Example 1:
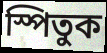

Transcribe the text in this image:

স্পিতুক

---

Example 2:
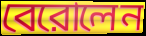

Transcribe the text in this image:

বেরোলেন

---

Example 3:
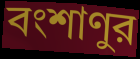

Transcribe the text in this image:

বংশাণুর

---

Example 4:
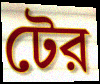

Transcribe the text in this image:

টের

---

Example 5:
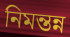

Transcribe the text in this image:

নিমন্তন্ন